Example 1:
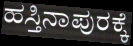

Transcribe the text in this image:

ಹಸ್ತಿನಾಪುರಕ್ಕೆ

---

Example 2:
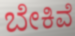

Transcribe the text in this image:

ಬೇಕಿವೆ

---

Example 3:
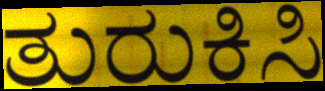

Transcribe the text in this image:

ತುರುಕಿಸಿ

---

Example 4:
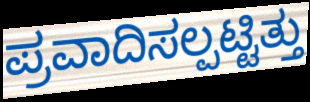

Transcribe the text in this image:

ಪ್ರವಾದಿಸಲ್ಪಟ್ಟಿತ್ತು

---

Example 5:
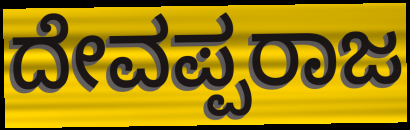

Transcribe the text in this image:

ದೇವಪ್ಪರಾಜ